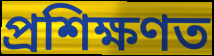
প্ৰশিক্ষণত